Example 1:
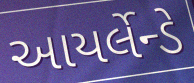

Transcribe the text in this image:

આયર્લેન્ડે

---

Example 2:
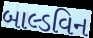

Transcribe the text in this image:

બાલ્ડવિન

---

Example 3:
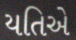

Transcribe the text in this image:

યતિએ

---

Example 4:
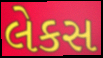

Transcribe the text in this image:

લેકસ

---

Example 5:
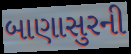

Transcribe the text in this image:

બાણાસુરની